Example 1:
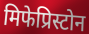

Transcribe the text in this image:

मिफेप्रिस्टोन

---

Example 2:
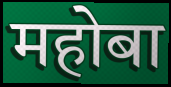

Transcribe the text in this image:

महोबा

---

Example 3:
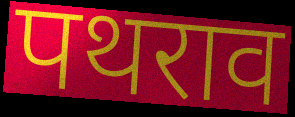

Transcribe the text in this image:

पथराव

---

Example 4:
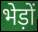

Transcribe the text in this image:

भेड़ों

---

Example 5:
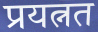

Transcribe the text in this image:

प्रयत्नत